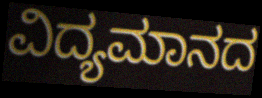
ವಿದ್ಯಮಾನದ